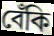
বেঁকি